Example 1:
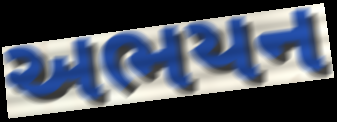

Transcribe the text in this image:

અભયન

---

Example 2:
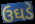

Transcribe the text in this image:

ઉઘડે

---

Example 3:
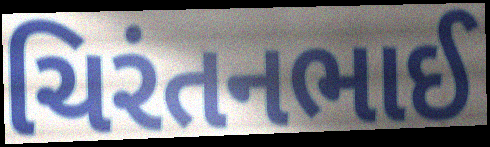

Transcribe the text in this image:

ચિરંતનભાઈ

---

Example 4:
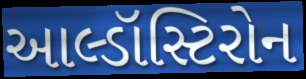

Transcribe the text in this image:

આલ્ડૉસ્ટિરોન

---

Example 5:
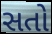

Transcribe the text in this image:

સતો